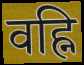
वह्नि